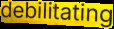
debilitating